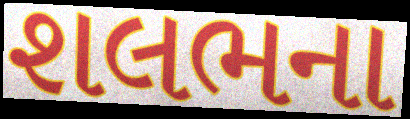
શલભના